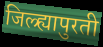
जिल्ह्यापुरती